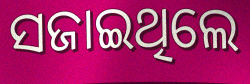
ସଜାଇଥିଲେ